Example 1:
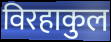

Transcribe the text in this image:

विरहाकुल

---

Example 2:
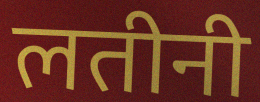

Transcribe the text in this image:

लतीनी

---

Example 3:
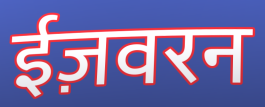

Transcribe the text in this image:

ईज़वरन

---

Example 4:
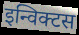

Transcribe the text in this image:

इन्विक्टस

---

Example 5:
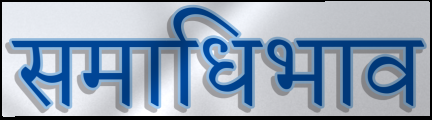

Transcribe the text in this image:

समाधिभाव